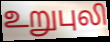
உறுபுலி